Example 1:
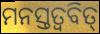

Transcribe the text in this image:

ମନସ୍ତତ୍ୱବିତ୍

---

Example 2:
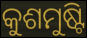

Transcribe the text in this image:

କୁଶମୁଷ୍ଟି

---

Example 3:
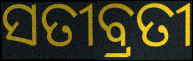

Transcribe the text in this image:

ସତୀବ୍ରତୀ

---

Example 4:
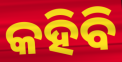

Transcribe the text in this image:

କହିବି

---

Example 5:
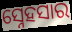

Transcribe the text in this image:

ସ୍ନେହସାର